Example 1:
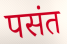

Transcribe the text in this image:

पसंत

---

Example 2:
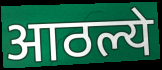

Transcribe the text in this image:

आठल्ये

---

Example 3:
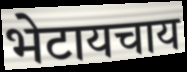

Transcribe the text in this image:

भेटायचाय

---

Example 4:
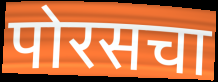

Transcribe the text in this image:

पोरसचा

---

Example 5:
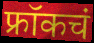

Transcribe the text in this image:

फ्रॉकचं